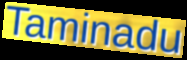
Taminadu